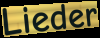
Lieder